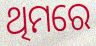
ଥିମରେ